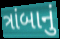
ત્રાંબાનું